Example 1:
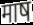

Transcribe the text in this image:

माष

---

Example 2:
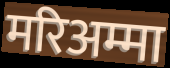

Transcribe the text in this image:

मरिअम्मा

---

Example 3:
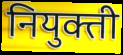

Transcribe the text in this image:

नियुक्ती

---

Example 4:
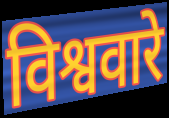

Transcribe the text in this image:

विश्ववारे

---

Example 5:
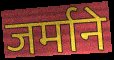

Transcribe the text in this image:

जर्माने